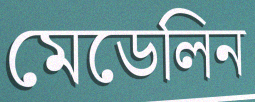
মেডেলিন